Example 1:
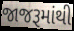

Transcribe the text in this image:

જાજરૂમાંથી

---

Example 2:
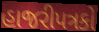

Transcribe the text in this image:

હાજરીપત્રકો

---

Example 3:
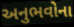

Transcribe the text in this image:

અનુભવોના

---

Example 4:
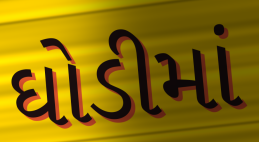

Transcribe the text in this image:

ઘોડીમાં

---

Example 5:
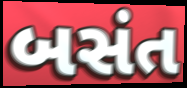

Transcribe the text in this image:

બસંત